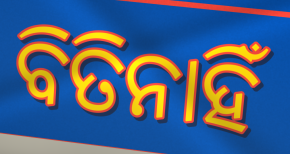
ବିତିନାହିଁ